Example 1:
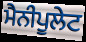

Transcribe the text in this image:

ਮੈਨੀਪੂਲੇਟ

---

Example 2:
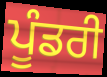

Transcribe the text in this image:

ਪੂੰਡਰੀ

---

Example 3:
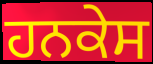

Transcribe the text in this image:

ਹਨਕੇਸ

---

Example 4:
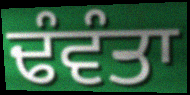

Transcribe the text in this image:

ਢੰਵੰਤਾ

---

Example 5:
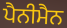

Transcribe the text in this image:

ਪੈਨੀਮੈਨ